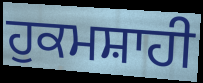
ਹੁਕਮਸ਼ਾਹੀ